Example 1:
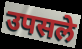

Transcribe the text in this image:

उपसले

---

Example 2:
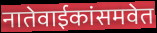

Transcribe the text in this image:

नातेवाईकांसमवेत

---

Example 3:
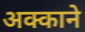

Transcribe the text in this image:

अक्काने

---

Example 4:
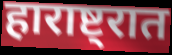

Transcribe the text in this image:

हाराष्ट्रात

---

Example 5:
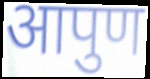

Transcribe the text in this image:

आपुण